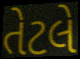
તેટલે